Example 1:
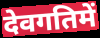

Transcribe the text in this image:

देवगतिमें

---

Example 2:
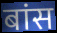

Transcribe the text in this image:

बांस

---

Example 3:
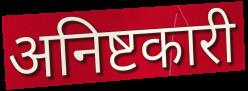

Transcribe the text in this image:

अनिष्टकारी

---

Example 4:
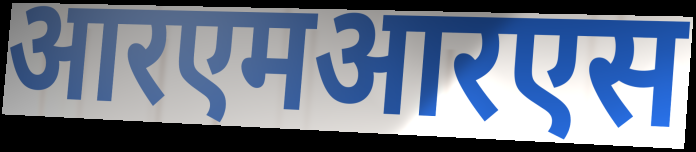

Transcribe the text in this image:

आरएमआरएस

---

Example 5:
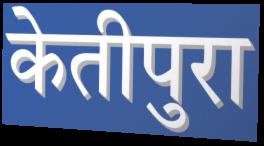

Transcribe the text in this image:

केतीपुरा